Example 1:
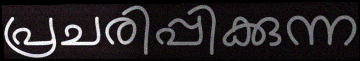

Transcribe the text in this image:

പ്രചരിപ്പിക്കുന്ന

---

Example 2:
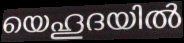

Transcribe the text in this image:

യെഹൂദയിൽ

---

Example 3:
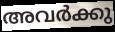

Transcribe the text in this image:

അവർക്കു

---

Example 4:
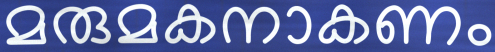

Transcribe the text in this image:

മരുമകനാകണം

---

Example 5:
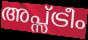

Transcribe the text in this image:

അപ്സ്ട്രീം